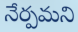
నేర్పమని